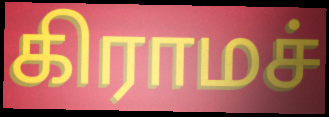
கிராமச்